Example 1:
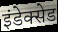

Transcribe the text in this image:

इंडेक्सेड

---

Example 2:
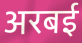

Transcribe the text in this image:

अरबई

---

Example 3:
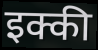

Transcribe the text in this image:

इक्की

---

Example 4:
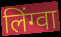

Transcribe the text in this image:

लिंग्वा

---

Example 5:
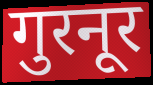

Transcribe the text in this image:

गुरनूर